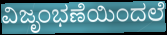
ವಿಜೃಂಭಣೆಯಿಂದಲೆ